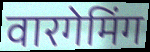
वारगेमिंग